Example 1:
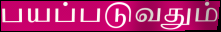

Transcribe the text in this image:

பயப்படுவதும்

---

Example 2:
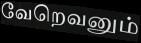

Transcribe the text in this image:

வேறெவனும்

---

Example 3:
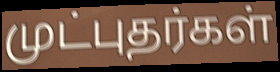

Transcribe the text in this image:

முட்புதர்கள்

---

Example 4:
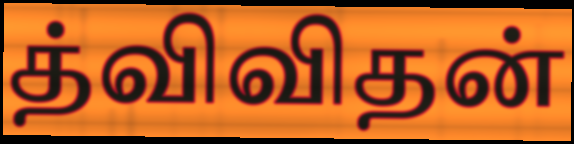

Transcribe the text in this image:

த்விவிதன்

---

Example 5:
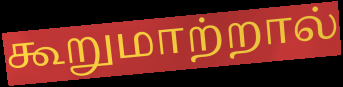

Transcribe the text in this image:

கூறுமாற்றால்